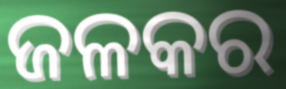
ଜଳକର